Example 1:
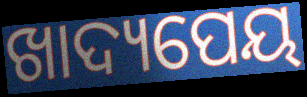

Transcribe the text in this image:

ଖାଦ୍ୟପେୟ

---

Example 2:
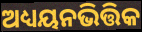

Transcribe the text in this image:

ଅଧ୍ୟୟନଭିତ୍ତିକ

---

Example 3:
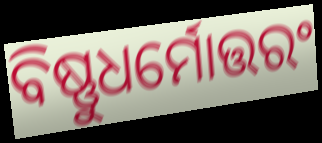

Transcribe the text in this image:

ବିଷ୍ଣୁଧର୍ମୋତ୍ତରଂ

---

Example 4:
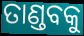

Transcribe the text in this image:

ତାଣ୍ଡବକୁ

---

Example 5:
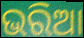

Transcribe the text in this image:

ଭରିଆ